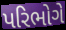
પરિભોગે